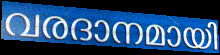
വരദാനമായി